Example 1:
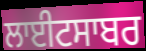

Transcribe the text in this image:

ਲਾਈਟਸਾਬਰ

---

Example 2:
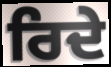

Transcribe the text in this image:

ਰਿਦੇ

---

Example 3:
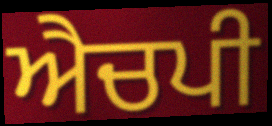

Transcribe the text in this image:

ਐਚਪੀ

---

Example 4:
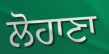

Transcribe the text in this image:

ਲੋਹਾਣਾ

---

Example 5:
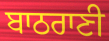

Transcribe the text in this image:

ਬਾਠਰਾਣੀ